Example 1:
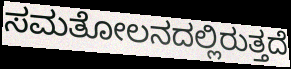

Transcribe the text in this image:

ಸಮತೋಲನದಲ್ಲಿರುತ್ತದೆ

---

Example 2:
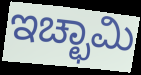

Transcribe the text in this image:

ಇಚ್ಛಾಮಿ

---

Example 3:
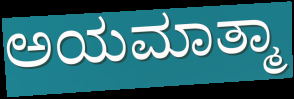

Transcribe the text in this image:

ಅಯಮಾತ್ಮಾ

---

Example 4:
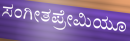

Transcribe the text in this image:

ಸಂಗೀತಪ್ರೇಮಿಯೂ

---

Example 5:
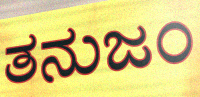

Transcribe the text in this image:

ತನುಜಂ